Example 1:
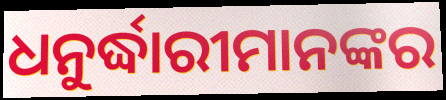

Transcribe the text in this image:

ଧନୁର୍ଦ୍ଧାରୀମାନଙ୍କର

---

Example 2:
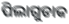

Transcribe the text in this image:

ପିଲାଗୁଡାକ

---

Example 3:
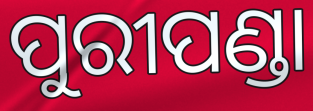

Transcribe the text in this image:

ପୁରୀପଣ୍ଡା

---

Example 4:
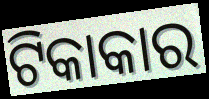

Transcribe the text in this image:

ଟିକାକାର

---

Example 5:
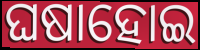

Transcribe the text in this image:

ଘଷାହୋଇ